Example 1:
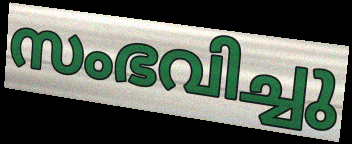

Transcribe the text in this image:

സംഭവിച്ചു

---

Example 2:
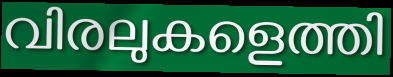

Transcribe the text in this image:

വിരലുകളെത്തി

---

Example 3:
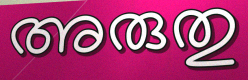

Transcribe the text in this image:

അരുതു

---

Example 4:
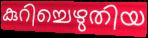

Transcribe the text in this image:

കുറിച്ചെഴുതിയ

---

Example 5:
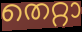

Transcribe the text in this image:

തെറ്റാ